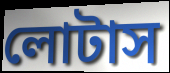
লোটাস